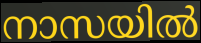
നാസയിൽ